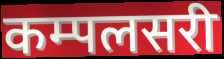
कम्पलसरी